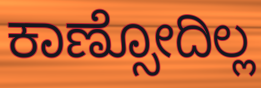
ಕಾಣ್ಸೋದಿಲ್ಲ